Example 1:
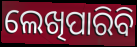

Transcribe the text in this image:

ଲେଖିପାରିବି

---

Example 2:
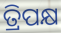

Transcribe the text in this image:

ତ୍ରିପକ୍ଷ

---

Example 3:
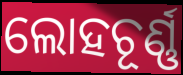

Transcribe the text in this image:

ଲୋହଚୂର୍ଣ୍ଣ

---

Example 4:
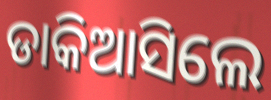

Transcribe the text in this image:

ଡାକିଆସିଲେ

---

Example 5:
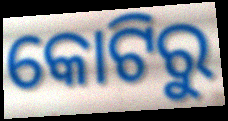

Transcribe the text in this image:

କୋଟିରୁ